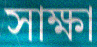
সাক্ষা